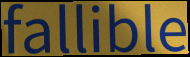
fallible